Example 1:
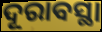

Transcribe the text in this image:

ଦୂରାବସ୍ଥା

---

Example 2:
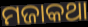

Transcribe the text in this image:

ମଜାକଥା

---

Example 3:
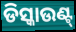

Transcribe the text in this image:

ଡିସ୍କାଉଣ୍ଟ୍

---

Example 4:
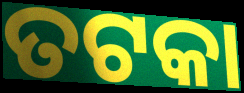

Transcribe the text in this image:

ତଟକା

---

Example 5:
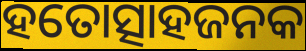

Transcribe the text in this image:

ହତୋତ୍ସାହଜନକ